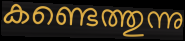
കണ്ടെത്തുന്നു